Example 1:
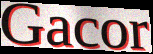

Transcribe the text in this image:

Gacor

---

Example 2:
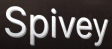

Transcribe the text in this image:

Spivey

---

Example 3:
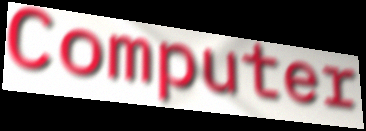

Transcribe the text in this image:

Computer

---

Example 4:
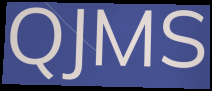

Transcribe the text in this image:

QJMS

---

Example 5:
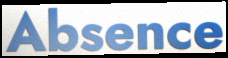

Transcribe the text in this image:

Absence